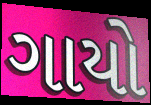
ગાયો